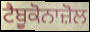
ਟੈਬੂਕੋਨਾਜ਼ੋਲ